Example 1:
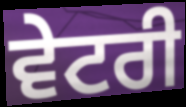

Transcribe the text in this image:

ਵੇਟਰੀ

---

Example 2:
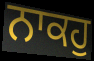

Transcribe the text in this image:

ਨਾਕਹੁ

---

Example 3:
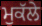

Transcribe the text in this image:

ਮੁਕੱਲੇ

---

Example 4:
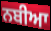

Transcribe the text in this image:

ਨਬੀਆ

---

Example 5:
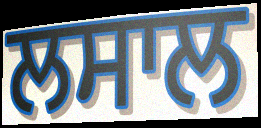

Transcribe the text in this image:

ਲਸਾਲ